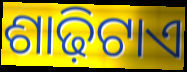
ଶାଢ଼ିଟାଏ